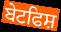
ਬੇਟਫਿਸ਼